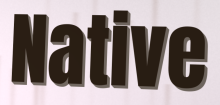
Native